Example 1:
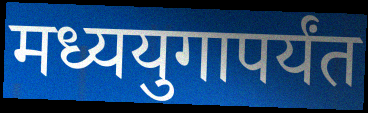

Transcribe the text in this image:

मध्ययुगापर्यंत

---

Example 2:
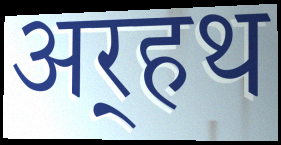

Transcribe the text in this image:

अर्हथ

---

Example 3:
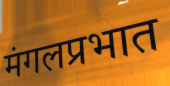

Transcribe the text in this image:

मंगलप्रभात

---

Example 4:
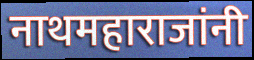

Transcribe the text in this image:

नाथमहाराजांनी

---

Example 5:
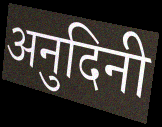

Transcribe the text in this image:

अनुदिनी